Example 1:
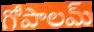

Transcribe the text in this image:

గోపాలమ్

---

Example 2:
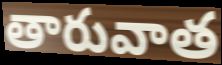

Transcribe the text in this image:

తారువాత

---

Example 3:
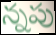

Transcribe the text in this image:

న్నపు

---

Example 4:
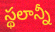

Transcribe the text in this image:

స్థలాన్నీ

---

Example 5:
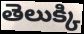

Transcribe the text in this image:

తెలుక్కి